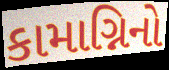
કામાગ્નિનો